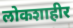
लोकशाहीर